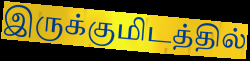
இருக்குமிடத்தில்